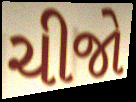
ચીજો